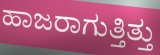
ಹಾಜರಾಗುತ್ತಿತ್ತು